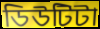
ডিউটিটা